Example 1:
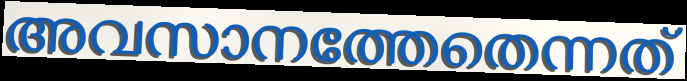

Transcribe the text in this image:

അവസാനത്തേതെന്നത്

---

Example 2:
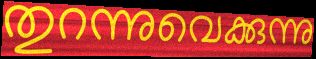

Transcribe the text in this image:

തുറന്നുവെക്കുന്നു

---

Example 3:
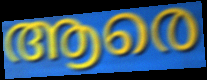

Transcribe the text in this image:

ആരെ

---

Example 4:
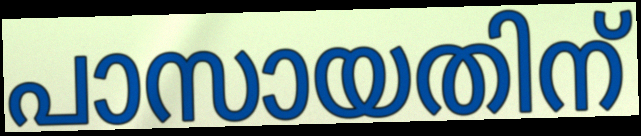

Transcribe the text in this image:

പാസായതിന്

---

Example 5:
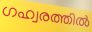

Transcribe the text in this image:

ഗഹ്വരത്തിൽ